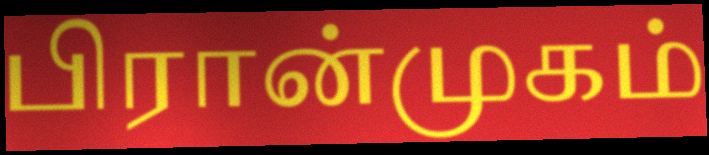
பிரான்முகம்